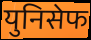
युनिसेफ